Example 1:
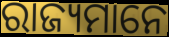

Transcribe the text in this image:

ରାଜ୍ୟମାନେ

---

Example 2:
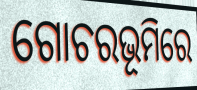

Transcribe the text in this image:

ଗୋଚରଭୂମିରେ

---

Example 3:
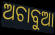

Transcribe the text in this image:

ଅଚାବୁଆ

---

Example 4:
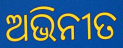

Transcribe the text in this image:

ଅଭିନୀତ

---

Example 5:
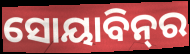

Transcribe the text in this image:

ସୋୟାବିନ୍‌ର